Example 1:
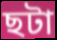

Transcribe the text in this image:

ছটা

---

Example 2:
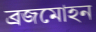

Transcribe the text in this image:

ব্ৰজমোহন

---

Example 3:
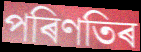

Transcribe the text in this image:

পৰিণতিৰ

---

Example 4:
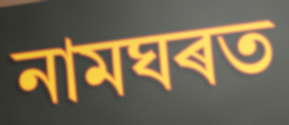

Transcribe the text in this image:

নামঘৰত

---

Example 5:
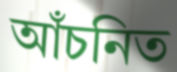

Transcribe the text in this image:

আঁচনিত